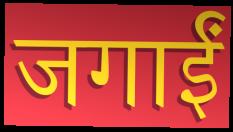
जगाईं